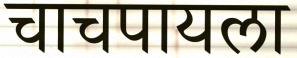
चाचपायला